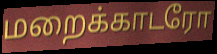
மறைக்காடரோ